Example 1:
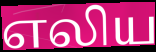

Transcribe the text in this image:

எலிய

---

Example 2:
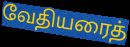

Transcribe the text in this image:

வேதியரைத்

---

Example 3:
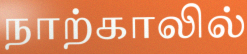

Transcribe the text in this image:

நாற்காலில்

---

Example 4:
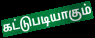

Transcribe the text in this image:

கட்டுபடியாகும்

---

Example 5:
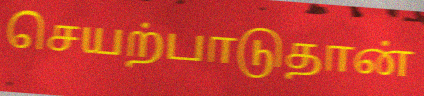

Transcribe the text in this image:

செயற்பாடுதான்